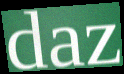
daz